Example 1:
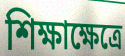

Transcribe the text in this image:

শিক্ষাক্ষেত্রে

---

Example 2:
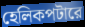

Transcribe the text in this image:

হেলিকপটারে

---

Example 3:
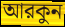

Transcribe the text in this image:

আরকুন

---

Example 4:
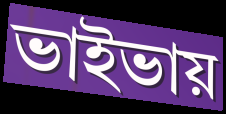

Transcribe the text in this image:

ভাইভায়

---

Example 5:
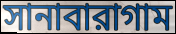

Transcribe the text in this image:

সানাবারাগাম